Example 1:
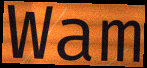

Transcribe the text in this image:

Wam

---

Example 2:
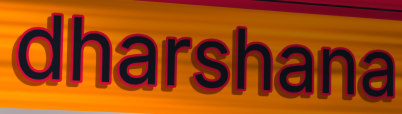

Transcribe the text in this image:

dharshana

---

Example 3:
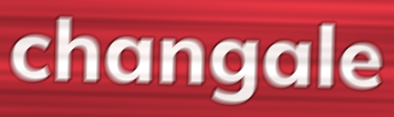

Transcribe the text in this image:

changale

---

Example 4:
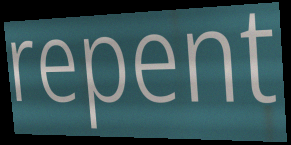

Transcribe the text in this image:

repent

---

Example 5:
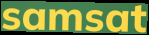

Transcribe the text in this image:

samsat